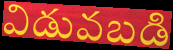
విడువబడి